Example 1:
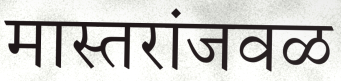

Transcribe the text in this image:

मास्तरांजवळ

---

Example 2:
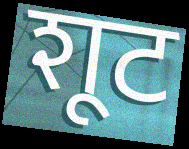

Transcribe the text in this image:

शूट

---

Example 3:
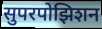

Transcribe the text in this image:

सुपरपोझिशन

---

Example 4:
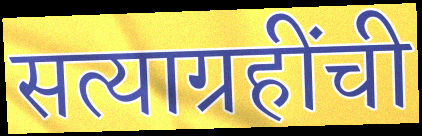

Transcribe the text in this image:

सत्याग्रहींची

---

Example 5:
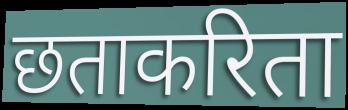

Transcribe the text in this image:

छताकरिता